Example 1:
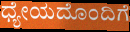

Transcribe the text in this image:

ಧ್ಯೇಯದೊಂದಿಗೆ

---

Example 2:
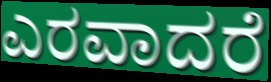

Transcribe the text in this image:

ಎರವಾದರೆ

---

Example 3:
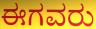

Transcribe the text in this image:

ಈಗವರು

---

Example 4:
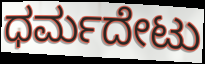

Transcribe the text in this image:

ಧರ್ಮದೇಟು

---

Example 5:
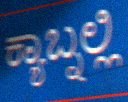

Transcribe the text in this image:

ಕ್ಯಾಬ್ನಲ್ಲಿ